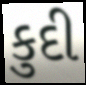
કુદી